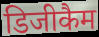
डिजीकैम